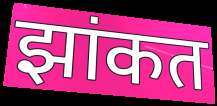
झांकत